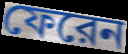
ফেরেন